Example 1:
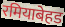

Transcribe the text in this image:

रमियाबेहड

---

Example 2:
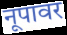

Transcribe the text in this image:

नूपावर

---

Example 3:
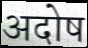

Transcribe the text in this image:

अदोष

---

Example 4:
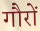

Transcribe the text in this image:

गौरों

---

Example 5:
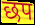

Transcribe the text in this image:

छप